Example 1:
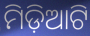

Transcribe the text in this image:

ମିଡ଼ିଆଟି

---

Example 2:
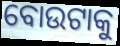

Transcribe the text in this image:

ବୋଉଟାକୁ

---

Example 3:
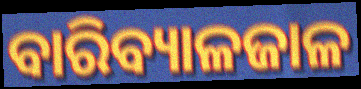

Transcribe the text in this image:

ବାରିବ୍ୟାଳଜାଳ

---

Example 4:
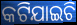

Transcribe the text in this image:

କଟିଯାଇଚି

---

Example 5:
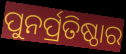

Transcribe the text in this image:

ପୁନର୍ପ୍ରତିଷ୍ଠାର